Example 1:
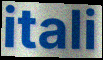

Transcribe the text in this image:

itali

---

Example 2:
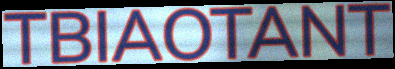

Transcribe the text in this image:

TBIAOTANT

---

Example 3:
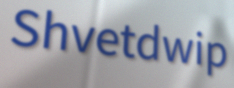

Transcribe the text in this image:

Shvetdwip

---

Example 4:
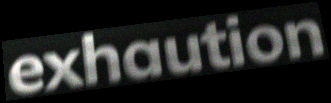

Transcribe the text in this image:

exhaution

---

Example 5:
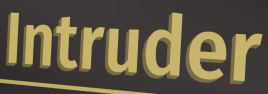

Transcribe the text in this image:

Intruder